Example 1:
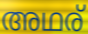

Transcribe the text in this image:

അഥര്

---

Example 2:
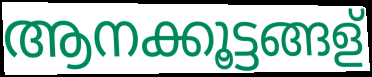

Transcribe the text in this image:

ആനക്കൂട്ടങ്ങള്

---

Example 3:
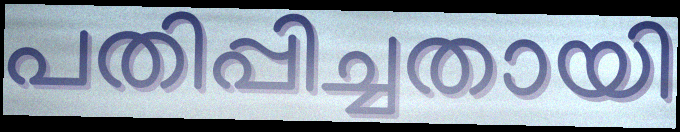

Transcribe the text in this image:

പതിപ്പിച്ചതായി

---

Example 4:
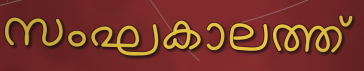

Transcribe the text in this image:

സംഘകാലത്ത്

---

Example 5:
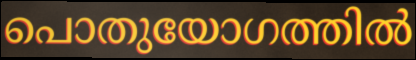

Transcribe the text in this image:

പൊതുയോഗത്തിൽ